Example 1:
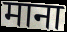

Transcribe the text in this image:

माना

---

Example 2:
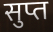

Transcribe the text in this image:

सुप्त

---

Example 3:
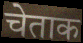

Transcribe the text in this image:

चेताक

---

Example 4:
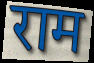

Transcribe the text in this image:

राम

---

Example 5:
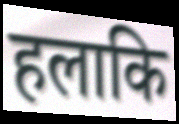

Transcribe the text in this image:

हलाकि